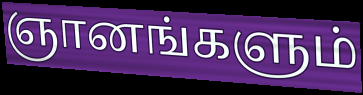
ஞானங்களும்